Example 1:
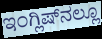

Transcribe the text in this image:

ಇಂಗ್ಲಿಷ್‌ನಲ್ಲೂ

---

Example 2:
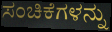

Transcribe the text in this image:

ಸಂಚಿಕೆಗಳನ್ನು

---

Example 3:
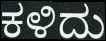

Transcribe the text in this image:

ಕಳಿದು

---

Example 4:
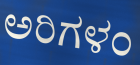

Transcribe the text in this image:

ಅರಿಗಳಂ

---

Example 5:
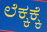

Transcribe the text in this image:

ಲೆಕ್ಕಕ್ಕೆ